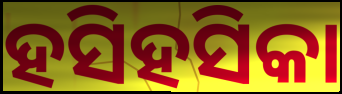
ହସିହସିକା